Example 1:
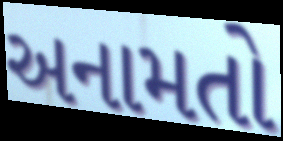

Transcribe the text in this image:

અનામતો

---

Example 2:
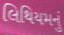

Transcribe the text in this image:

લિથિયમનું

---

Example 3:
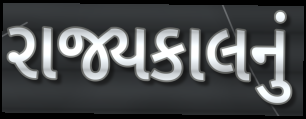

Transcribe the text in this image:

રાજ્યકાલનું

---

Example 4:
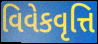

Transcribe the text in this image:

વિવેકવૃત્તિ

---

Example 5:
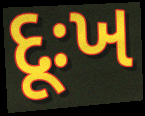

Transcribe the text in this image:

દૂઃખ